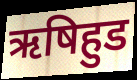
ऋषिहुड